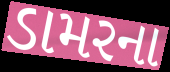
ડામરના